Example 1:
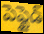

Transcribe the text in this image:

పెప్టైడ్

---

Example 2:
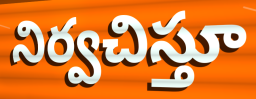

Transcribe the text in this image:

నిర్వచిస్తూ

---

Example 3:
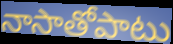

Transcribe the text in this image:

నాసాతోపాటు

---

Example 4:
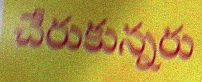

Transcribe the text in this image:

చేరుకున్నరు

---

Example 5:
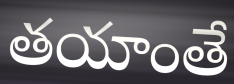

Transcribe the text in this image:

తయాంతే